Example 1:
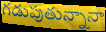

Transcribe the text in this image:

గడుపుతున్నానా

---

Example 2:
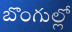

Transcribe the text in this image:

బొంగుల్లో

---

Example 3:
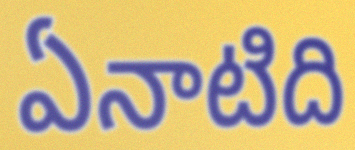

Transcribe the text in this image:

ఏనాటిది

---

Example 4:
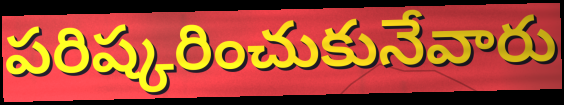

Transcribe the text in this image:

పరిష్కరించుకునేవారు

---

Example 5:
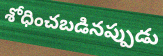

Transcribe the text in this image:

శోధించబడినప్పుడు